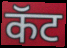
कॅट